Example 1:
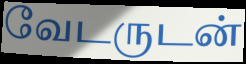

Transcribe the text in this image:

வேடருடன்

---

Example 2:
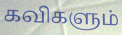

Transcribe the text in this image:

கவிகளும்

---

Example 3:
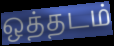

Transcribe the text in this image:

ஒத்தடம்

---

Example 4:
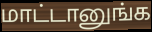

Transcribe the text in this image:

மாட்டானுங்க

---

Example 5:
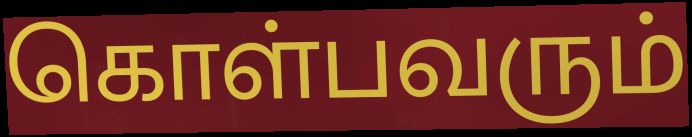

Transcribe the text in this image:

கொள்பவரும்